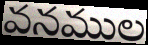
వనముల